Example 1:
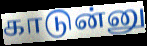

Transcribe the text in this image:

காடுன்னு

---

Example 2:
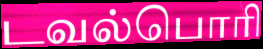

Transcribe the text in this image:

டவல்பொரி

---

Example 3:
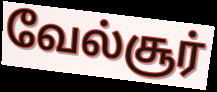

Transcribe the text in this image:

வேல்சூர்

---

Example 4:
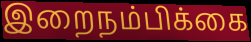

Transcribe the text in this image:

இறைநம்பிக்கை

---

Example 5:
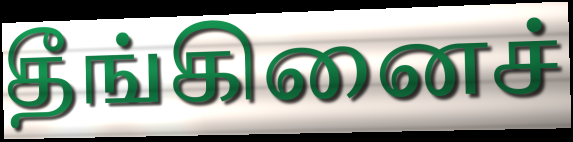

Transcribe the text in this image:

தீங்கினைச்